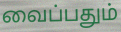
வைப்பதும்